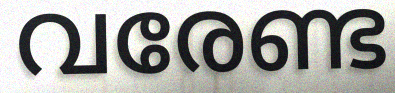
വരേണ്ട